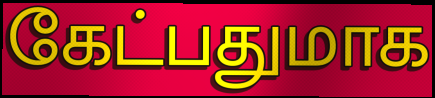
கேட்பதுமாக